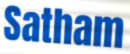
Satham